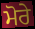
ਮੋਰੇ